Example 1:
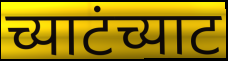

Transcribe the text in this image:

च्याटंच्याट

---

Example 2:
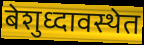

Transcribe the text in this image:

बेशुध्दावस्थेत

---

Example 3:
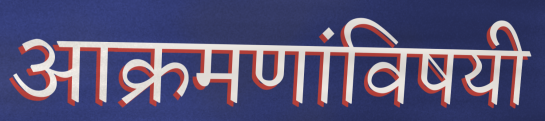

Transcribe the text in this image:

आक्रमणांविषयी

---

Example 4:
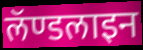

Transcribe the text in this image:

लॅण्डलाइन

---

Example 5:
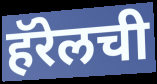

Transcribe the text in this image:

हॅरेलची